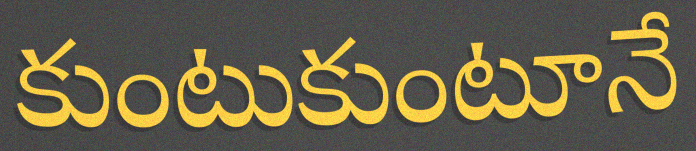
కుంటుకుంటూనే